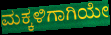
ಮಕ್ಕಳಿಗಾಗಿಯೇ